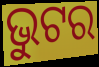
ଭୁଟର